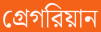
গ্রেগরিয়ান